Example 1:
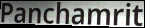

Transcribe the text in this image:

Panchamrit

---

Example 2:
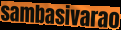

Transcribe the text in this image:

sambasivarao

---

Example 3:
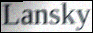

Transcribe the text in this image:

Lansky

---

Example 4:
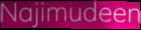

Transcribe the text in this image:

Najimudeen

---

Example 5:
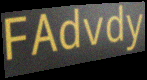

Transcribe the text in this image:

FAdvdy